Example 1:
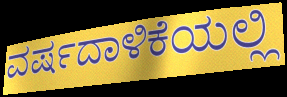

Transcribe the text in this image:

ವರ್ಷದಾಳಿಕೆಯಲ್ಲಿ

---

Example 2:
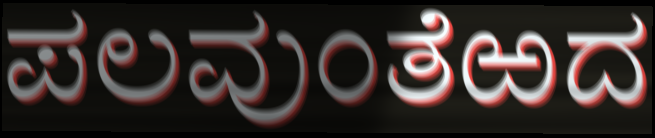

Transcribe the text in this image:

ಪಲವುಂತೆಱದ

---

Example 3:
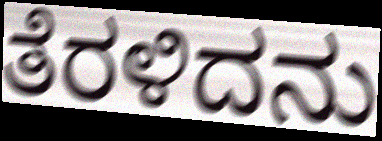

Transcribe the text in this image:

ತೆರಳಿದನು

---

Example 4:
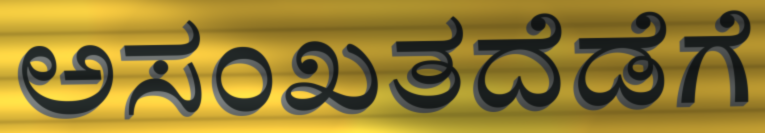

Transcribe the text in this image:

ಅಸಂಖತದೆಡೆಗೆ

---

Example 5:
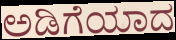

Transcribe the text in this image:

ಅಡಿಗೆಯಾದ